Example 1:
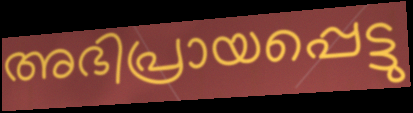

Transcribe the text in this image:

അഭിപ്രായപ്പെട്ടു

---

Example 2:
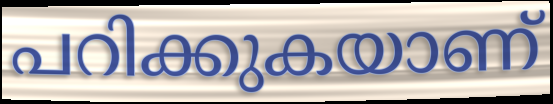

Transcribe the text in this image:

പറിക്കുകയാണ്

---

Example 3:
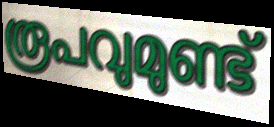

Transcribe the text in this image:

രൂപവുമുണ്ട്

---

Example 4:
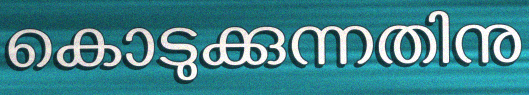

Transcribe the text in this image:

കൊടുക്കുന്നതിനു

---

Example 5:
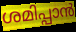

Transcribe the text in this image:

ശമിപ്പാൻ